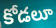
కోడలూ